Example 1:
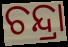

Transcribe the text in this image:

ଚନ୍ଦ୍ରା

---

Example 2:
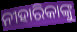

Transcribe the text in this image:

ନୀହାରିକାଙ୍କୁ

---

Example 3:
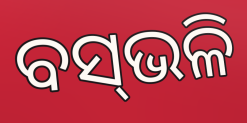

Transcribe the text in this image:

ବସ୍‌ଭଳି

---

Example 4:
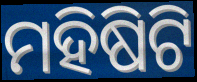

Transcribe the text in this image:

ମହିଷିଟି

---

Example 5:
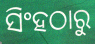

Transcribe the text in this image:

ସିଂହଠାରୁ